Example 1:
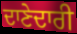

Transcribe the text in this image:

ਦਾਣੇਦਾਰੀ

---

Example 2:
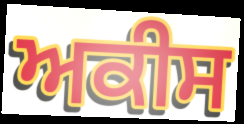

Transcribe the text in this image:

ਅਕੀਸ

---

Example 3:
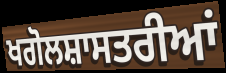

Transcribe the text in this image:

ਖਗੋਲਸ਼ਾਸਤਰੀਆਂ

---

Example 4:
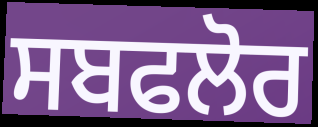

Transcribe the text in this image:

ਸਬਫਲੋਰ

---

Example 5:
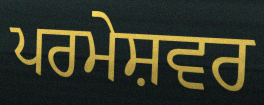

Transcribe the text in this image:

ਪਰਮੇਸ਼ਵਰ